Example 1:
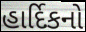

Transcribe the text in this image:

હાર્દિકનો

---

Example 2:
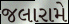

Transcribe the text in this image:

જલારામે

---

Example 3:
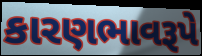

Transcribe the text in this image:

કારણભાવરૂપે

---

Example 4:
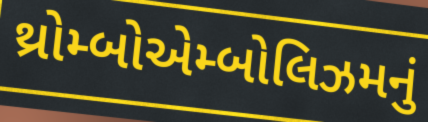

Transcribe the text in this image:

થ્રોમ્બોએમ્બોલિઝમનું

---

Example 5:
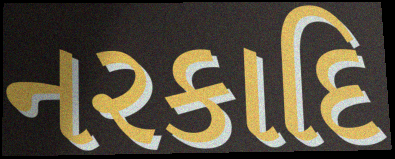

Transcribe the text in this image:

નરકાદિ